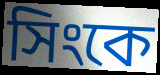
সিংকে